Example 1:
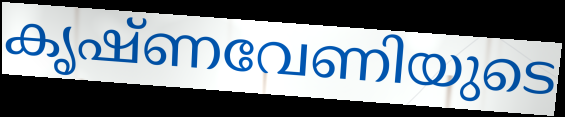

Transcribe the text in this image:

കൃഷ്ണവേണിയുടെ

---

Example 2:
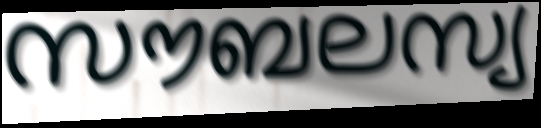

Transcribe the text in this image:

സൗബലസ്യ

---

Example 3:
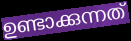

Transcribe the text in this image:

ഉണ്ടാക്കുന്നത്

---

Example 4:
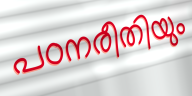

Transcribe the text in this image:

പഠനരീതിയും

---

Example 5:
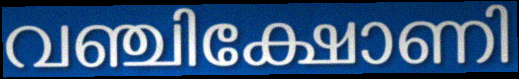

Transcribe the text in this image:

വഞ്ചിക്ഷോണി